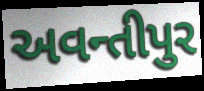
અવન્તીપુર